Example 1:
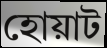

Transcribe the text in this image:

হোয়াট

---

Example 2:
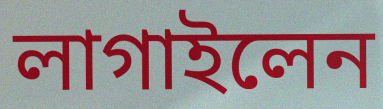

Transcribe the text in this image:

লাগাইলেন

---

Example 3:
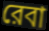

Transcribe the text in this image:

রেবা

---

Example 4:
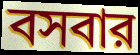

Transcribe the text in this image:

বসবার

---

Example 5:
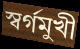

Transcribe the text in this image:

স্বর্গমুখী